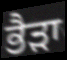
ਭੈੜਾ